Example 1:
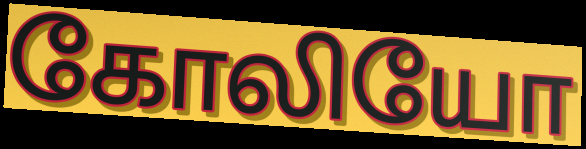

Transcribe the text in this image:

கோலியோ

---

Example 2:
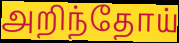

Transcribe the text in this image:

அறிந்தோய்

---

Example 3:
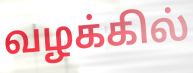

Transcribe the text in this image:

வழக்கில்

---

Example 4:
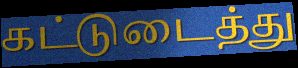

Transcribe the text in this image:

கட்டுடைத்து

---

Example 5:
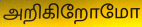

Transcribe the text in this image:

அறிகிறோமோ